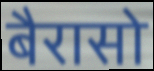
बैरासो